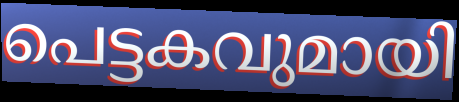
പെട്ടകവുമായി